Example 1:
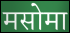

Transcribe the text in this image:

मसोमा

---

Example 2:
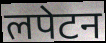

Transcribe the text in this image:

लपेटन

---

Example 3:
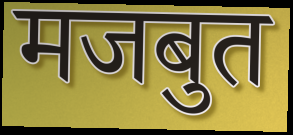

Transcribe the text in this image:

मजबुत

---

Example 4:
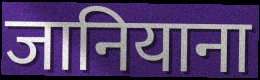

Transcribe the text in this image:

जानियाना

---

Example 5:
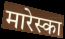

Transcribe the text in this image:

मारेस्का